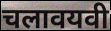
चलावयवी